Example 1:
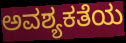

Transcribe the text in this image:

ಅವಶ್ಯಕತೆಯ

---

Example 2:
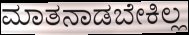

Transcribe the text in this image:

ಮಾತನಾಡಬೇಕಿಲ್ಲ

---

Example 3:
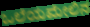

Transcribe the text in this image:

ಒಲೆಯಮೇಲಿನ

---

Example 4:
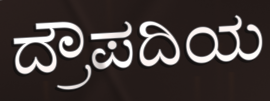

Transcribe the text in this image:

ದ್ರೌಪದಿಯ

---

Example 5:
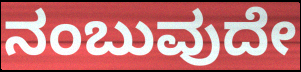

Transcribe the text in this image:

ನಂಬುವುದೇ